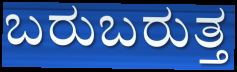
ಬರುಬರುತ್ತ